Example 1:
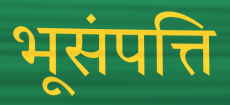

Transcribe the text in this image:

भूसंपत्ति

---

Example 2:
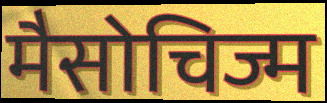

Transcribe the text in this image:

मैसोचिज्म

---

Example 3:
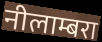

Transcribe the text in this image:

नीलाम्बरा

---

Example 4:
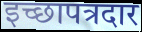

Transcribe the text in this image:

इच्छापत्रदार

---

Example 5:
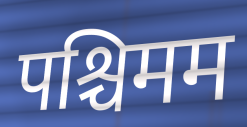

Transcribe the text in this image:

पश्चिमम